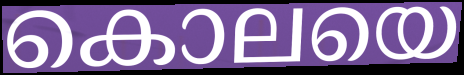
കൊലയെ